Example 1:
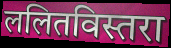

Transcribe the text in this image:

ललितविस्तरा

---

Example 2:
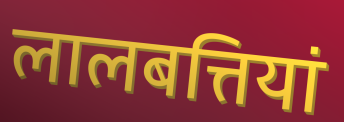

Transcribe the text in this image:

लालबत्तियां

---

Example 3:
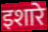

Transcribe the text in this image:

इशारे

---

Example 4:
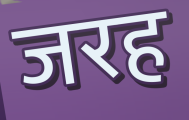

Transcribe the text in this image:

जरह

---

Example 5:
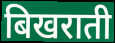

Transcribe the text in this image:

बिखराती